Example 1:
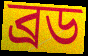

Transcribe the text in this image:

ব্ৰড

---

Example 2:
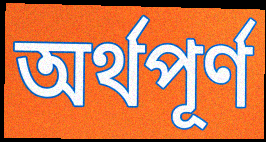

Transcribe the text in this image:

অৰ্থপূৰ্ণ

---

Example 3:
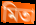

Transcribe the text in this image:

মিতা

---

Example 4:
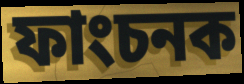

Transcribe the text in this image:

ফাংচনক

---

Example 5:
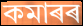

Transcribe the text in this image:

কমাৰৰ